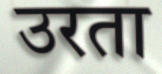
उरता